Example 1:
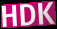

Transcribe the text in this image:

HDK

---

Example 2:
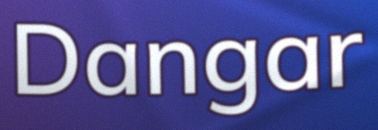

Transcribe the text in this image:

Dangar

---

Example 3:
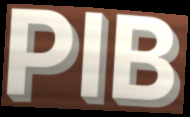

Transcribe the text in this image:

PIB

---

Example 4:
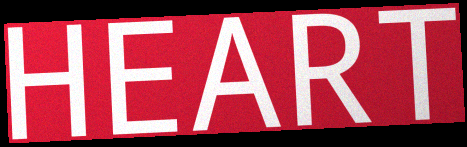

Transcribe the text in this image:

HEART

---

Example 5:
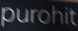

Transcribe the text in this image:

purohit